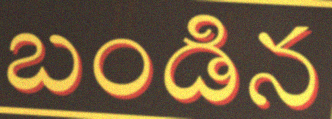
బండిన